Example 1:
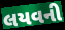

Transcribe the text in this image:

લયવની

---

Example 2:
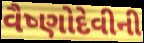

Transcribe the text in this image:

વૈષ્ણોદેવીની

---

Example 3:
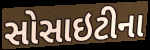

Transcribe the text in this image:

સોસાઇટીના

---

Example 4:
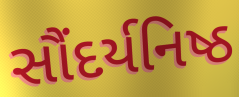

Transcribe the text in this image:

સૌંદર્યનિષ્ઠ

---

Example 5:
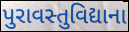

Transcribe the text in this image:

પુરાવસ્તુવિદ્યાના